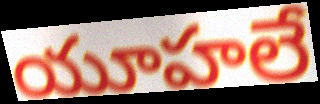
యూహలే